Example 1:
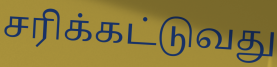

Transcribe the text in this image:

சரிக்கட்டுவது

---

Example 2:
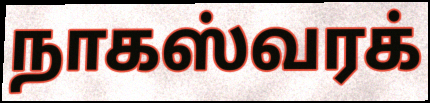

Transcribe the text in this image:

நாகஸ்வரக்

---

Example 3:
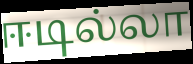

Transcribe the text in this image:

ஈடில்லா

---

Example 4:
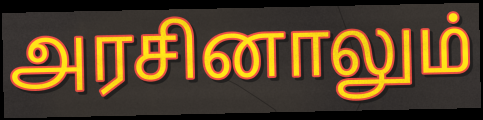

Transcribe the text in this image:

அரசினாலும்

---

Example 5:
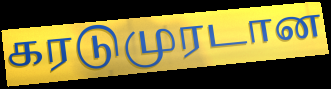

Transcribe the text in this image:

கரடுமுரடான